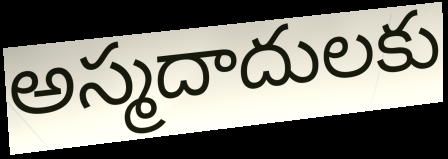
అస్మదాదులకు